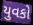
યુવકો